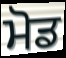
ਮੋਡ